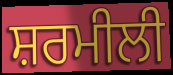
ਸ਼ਰਮੀਲੀ